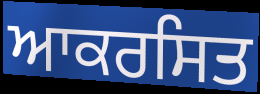
ਆਕਰਸਿਤ